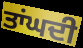
ਤਾਂਘਦੀ